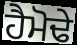
ਹੈਮੋਢੇ